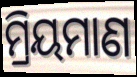
ମ୍ରିୟମାଣ